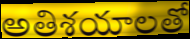
అతిశయాలతో